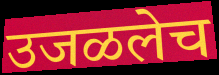
उजळलेच